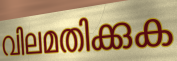
വിലമതിക്കുക